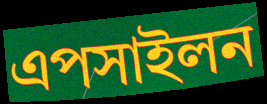
এপসাইলন